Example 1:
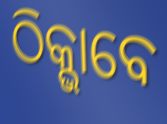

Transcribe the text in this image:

ଠିକ୍ଭାବେ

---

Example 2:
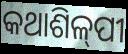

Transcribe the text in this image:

କଥାଶିଳ୍‌ପୀ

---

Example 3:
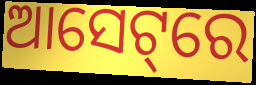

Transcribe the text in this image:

ଆସେଟ୍‌ରେ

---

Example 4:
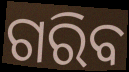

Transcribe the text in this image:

ଗରିବ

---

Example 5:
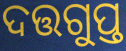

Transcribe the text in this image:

ଦତ୍ତଗୁପ୍ତ